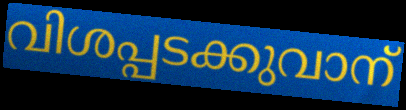
വിശപ്പടക്കുവാന്